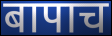
बापाच